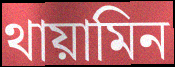
থায়ামিন